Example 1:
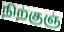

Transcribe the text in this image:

நிற்குஞ்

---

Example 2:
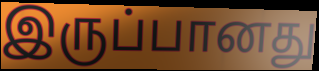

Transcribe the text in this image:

இருப்பானது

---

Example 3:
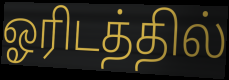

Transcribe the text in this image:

ஓரிடத்தில்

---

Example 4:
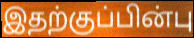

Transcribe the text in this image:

இதற்குப்பின்பு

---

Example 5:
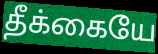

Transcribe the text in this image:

தீக்கையே